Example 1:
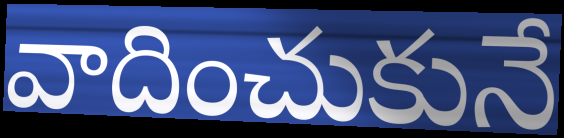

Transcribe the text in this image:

వాదించుకునే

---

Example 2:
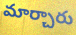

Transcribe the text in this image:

మార్చారు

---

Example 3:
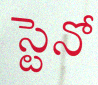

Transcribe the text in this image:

స్టెనో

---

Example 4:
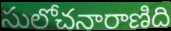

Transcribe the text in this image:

సులోచనారాణిది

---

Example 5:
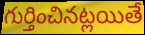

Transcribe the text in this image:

గుర్తించినట్లయితే